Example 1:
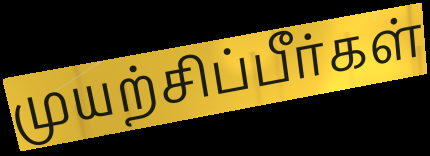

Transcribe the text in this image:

முயற்சிப்பீர்கள்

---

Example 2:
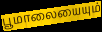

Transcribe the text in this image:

பூமாலையையும்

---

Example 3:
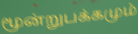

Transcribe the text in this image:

மூன்றுபக்கமும்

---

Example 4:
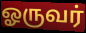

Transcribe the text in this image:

ஓருவர்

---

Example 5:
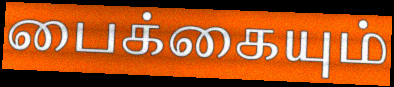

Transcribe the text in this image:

பைக்கையும்